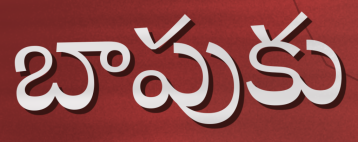
బాపుకు